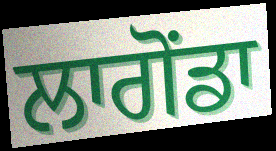
ਲਾਗੋਂਡਾ